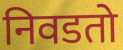
निवडतो